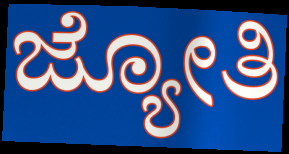
ಜ್ಯೋತಿ